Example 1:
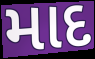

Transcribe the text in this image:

માદ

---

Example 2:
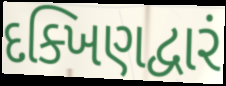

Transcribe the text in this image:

દક્ખિણદ્વારં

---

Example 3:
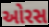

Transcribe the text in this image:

ઓરસ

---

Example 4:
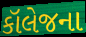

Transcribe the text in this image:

કૉલેજના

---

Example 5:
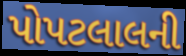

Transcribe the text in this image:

પોપટલાલની